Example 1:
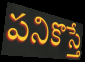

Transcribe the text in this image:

పనికొస్తే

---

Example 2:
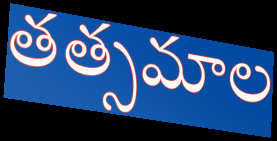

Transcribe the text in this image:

తత్సమాల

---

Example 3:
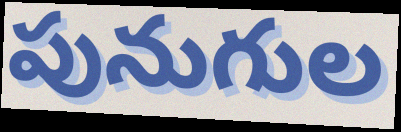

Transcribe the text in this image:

పునుగుల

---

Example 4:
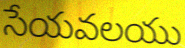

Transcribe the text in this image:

సేయవలయు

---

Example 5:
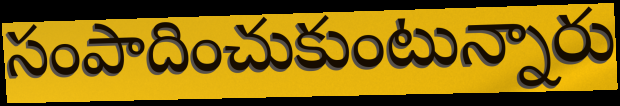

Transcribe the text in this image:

సంపాదించుకుంటున్నారు